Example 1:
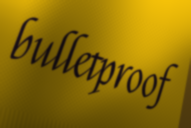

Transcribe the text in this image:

bulletproof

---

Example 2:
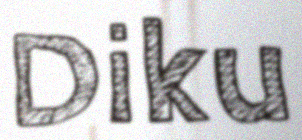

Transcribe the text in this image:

Diku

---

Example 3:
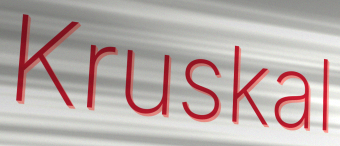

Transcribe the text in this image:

Kruskal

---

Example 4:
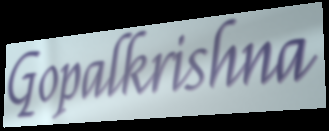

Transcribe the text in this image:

Gopalkrishna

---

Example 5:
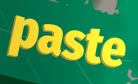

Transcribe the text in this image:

paste